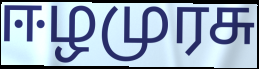
ஈழமுரசு